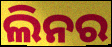
ଲିନର